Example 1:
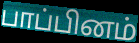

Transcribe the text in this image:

பாப்பினம்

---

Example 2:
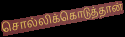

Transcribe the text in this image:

சொல்லிக்கொடுத்தான்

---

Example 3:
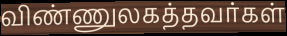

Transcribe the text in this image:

விண்ணுலகத்தவர்கள்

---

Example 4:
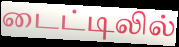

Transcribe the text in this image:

டைட்டிலில்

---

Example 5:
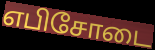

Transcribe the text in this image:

எபிசோடை